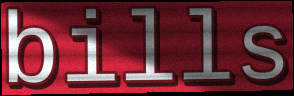
bills